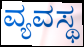
ವ್ಯವಸ್ಥ